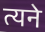
त्यने